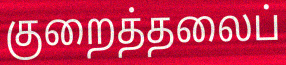
குறைத்தலைப்